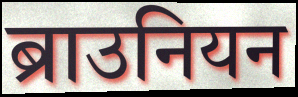
ब्राउनियन